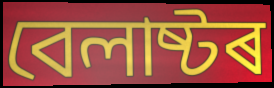
বেলাষ্টৰ